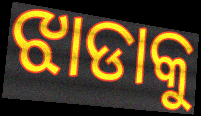
ଝାଡାକୁ